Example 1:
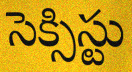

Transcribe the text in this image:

సెక్సిస్టు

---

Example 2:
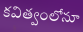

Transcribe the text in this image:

కవిత్వంలోనూ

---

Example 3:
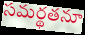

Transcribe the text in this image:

సమర్థతనూ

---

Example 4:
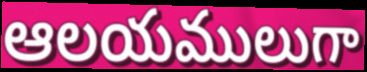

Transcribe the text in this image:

ఆలయములుగా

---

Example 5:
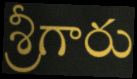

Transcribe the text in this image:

శ్రీగారు